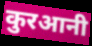
कुरआनी